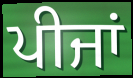
ਪੀਜਾਂ